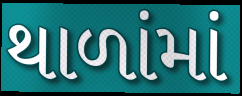
થાળાંમાં